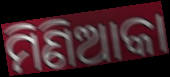
ମିଣିଆକା